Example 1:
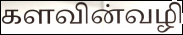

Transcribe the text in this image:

களவின்வழி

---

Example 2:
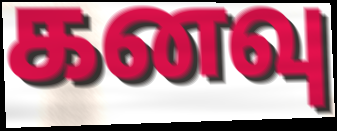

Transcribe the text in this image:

கனவு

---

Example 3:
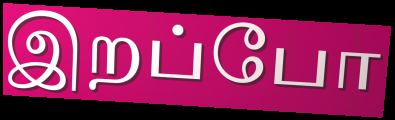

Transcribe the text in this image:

இறப்போ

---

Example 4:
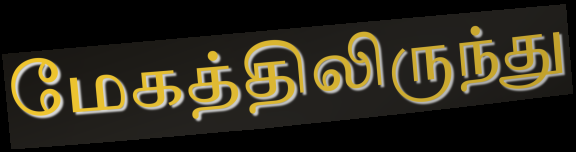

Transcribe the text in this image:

மேகத்திலிருந்து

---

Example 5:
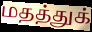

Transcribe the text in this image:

மதத்துக்